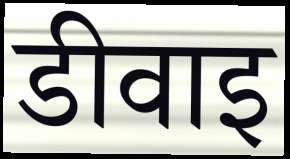
डीवाइ